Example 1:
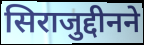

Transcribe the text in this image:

सिराजुद्दीनने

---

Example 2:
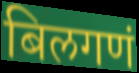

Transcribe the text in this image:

बिलगणं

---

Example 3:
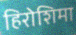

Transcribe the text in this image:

हिरोशिमा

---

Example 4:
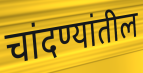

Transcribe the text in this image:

चांदण्यांतील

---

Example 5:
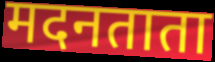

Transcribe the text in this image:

मदनताता